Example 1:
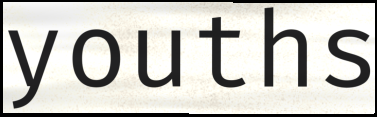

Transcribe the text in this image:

youths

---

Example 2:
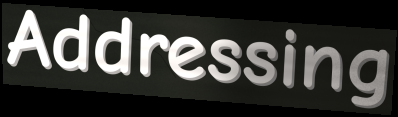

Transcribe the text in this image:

Addressing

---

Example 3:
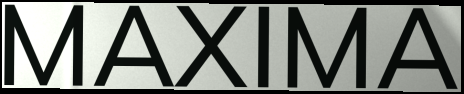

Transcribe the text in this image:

MAXIMA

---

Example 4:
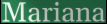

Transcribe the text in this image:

Mariana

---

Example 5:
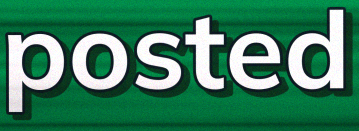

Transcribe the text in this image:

posted